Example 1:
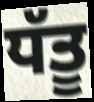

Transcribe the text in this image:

ਧੱਤੂ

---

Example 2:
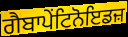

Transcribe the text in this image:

ਗੈਬਾਪੇਂਟਿਨੋਇਡਜ਼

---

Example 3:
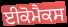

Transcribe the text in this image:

ਈਕੋਮੈਕਸ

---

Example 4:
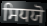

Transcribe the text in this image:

ਸਿਧਯੋ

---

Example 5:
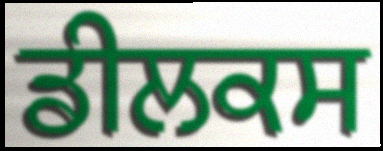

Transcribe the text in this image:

ਡੀਲਕਸ